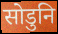
सोडुनि